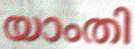
യാംതി